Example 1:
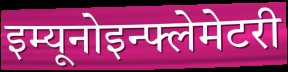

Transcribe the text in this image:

इम्यूनोइन्फ्लेमेटरी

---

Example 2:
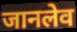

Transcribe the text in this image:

जानलेव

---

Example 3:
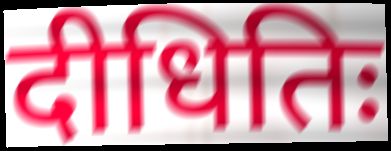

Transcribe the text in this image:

दीधितिः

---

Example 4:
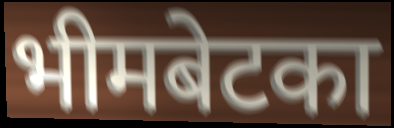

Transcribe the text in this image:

भीमबेटका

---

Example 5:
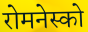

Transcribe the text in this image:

रोमनेस्को